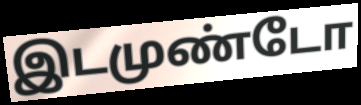
இடமுண்டோ